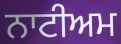
ਨਾਟੀਅਮ